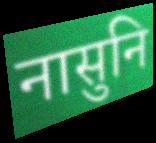
नासुनि